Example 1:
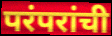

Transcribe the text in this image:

परंपरांची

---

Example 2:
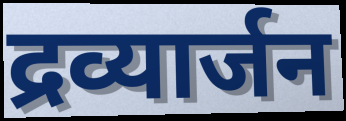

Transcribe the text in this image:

द्रव्यार्जन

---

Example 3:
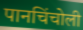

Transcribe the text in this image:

पानचिंचोली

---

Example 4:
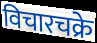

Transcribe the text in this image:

विचारचक्रे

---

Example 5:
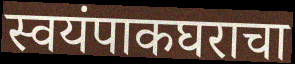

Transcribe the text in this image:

स्वयंपाकघराचा